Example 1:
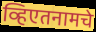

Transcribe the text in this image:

व्हिएतनामचे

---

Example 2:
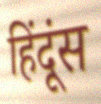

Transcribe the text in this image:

हिंदूंस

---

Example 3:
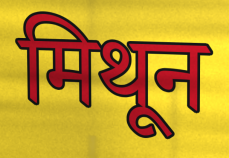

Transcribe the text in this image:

मिथून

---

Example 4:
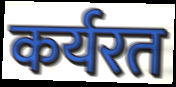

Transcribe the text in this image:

कर्यरत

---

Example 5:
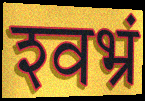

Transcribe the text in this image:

श्वभ्रं